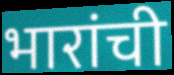
भारांची